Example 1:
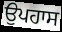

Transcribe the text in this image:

ਉਪਹਾਸ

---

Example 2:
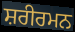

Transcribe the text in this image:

ਸ਼ਰੀਰਮਨ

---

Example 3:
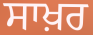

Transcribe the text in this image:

ਸਾਖ਼ਰ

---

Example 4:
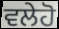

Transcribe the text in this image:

ਵਲੇਹੋ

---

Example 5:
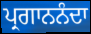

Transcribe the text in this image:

ਪ੍ਰਗਾਨਨੰਦਾ